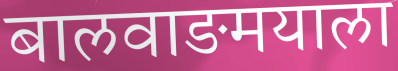
बालवाङमयाला